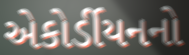
એકોર્ડીયનનો